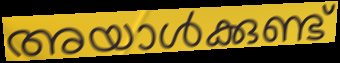
അയാൾക്കുണ്ട്